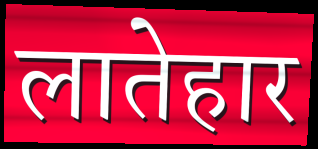
लातेहार